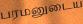
பரமனுடைய